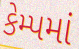
કેમ્પમાં